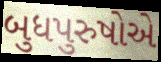
બુધપુરુષોએ